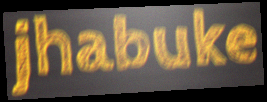
jhabuke